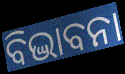
ବିଦ୍ଭାବନା